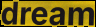
dream